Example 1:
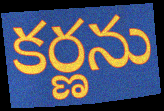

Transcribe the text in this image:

కర్ణను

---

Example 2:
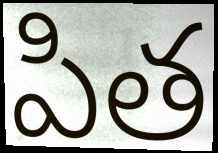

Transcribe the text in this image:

పిత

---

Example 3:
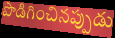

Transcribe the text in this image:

పొడిగించినప్పుడు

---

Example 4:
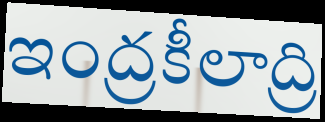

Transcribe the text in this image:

ఇంద్రకీలాద్రి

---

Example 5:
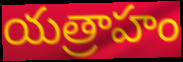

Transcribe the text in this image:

యత్రాహం